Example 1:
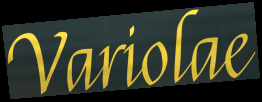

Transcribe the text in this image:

Variolae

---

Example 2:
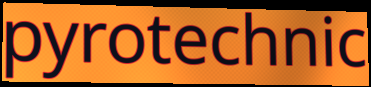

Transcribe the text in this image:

pyrotechnic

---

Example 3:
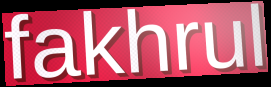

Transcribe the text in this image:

fakhrul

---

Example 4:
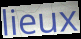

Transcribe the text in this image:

lieux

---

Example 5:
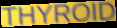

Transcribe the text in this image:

THYROID